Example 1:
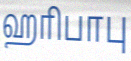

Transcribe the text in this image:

ஹரிபாபு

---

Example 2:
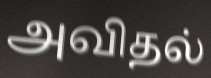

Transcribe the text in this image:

அவிதல்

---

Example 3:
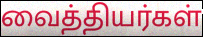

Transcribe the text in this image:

வைத்தியர்கள்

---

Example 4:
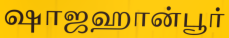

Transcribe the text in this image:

ஷாஜஹான்பூர்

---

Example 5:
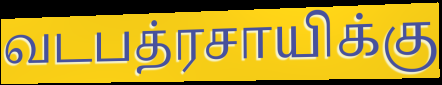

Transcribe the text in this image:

வடபத்ரசாயிக்கு